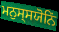
ਮਨੁਸ੍ਸਯੋਨਿਂ